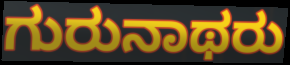
ಗುರುನಾಥರು